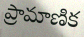
ప్రామాణిక